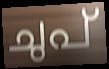
ചുപ്